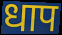
धाप